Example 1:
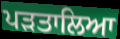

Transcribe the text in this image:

ਪੜਤਾਲਿਆ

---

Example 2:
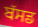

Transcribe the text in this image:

ਬੱਸਡ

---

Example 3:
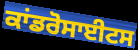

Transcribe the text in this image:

ਕਾਂਡਰੋਸਾਈਟਸ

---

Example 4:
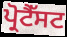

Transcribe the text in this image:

ਪ੍ਰੋਟੈੱਸਟ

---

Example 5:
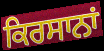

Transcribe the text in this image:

ਕਿਰਸਾਨਾਂ